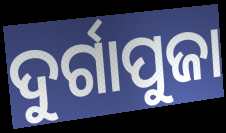
ଦୁର୍ଗାପୁଜା